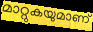
മാറ്റുകയുമാണ്